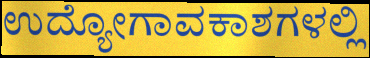
ಉದ್ಯೋಗಾವಕಾಶಗಳಲ್ಲಿ